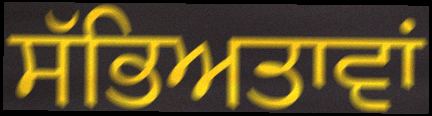
ਸੱਭਿਅਤਾਵਾਂ